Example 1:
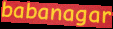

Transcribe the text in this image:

babanagar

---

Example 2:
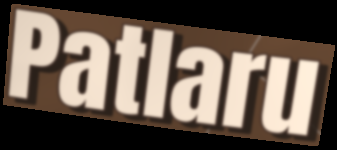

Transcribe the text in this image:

Patlaru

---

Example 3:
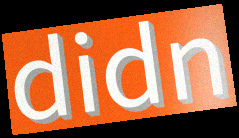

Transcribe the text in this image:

didn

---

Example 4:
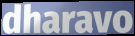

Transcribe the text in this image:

dharavo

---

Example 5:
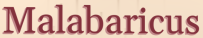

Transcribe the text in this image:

Malabaricus